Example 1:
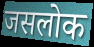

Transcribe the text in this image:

जसलोक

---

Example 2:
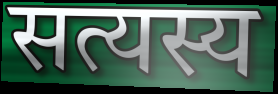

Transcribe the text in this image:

सत्यस्य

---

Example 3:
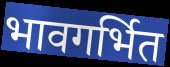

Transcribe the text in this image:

भावगर्भित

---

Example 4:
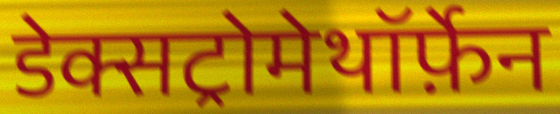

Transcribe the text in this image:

डेक्सट्रोमेथॉर्फ़ेन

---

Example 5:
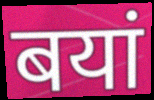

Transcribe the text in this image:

बयां